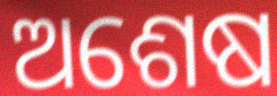
ଅଶେଷ